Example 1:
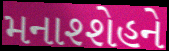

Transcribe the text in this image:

મનાશ્શેહને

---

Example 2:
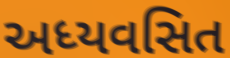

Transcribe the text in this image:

અધ્યવસિત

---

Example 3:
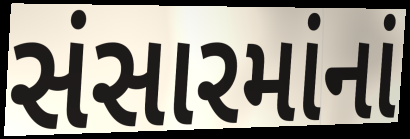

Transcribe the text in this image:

સંસારમાંનાં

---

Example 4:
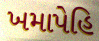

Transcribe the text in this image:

ખમાપેહિ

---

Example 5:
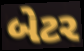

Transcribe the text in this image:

બેટર